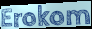
Erokom